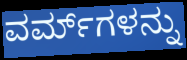
ವರ್ಮ್‌ಗಳನ್ನು